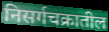
निसर्गचक्रातील